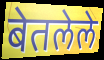
बेतलेले